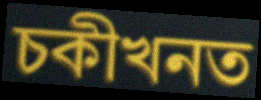
চকীখনত